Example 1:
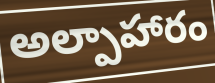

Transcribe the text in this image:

అల్పాహారం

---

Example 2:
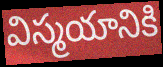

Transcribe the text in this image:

విస్మయానికి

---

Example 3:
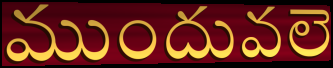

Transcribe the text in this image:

ముందువలె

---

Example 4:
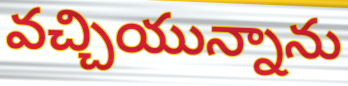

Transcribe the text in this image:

వచ్చియున్నాను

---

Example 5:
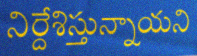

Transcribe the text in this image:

నిర్దేశిస్తున్నాయని